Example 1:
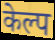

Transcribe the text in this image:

केल्प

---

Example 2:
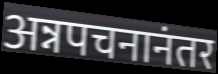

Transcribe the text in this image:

अन्नपचनानंतर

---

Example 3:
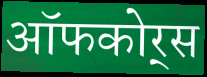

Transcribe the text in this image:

ऑफकोर्स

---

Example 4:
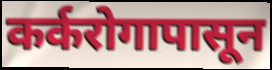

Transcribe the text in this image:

कर्करोगापासून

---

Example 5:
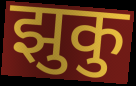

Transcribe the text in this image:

झुकु